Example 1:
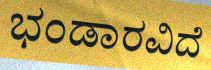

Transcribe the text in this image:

ಭಂಡಾರವಿದೆ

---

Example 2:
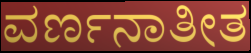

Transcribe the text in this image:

ವರ್ಣನಾತೀತ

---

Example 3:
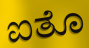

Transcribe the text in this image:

ಐತೊ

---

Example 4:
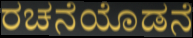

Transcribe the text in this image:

ರಚನೆಯೊಡನೆ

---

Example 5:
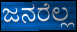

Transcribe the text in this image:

ಜನರೆಲ್ಲ